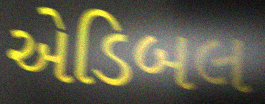
એડિબલ